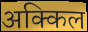
अक्किल